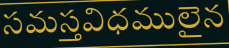
సమస్తవిధములైన